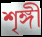
শৃঙ্গী